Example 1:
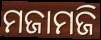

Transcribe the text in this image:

ମଜାମଜି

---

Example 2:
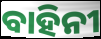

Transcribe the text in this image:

ବାହିନୀ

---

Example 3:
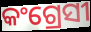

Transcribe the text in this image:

କଂଗ୍ରେସୀ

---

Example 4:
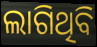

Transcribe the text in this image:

ଲାଗିଥିବି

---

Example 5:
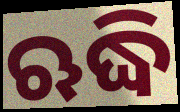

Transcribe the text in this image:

ଋଦ୍ଧି